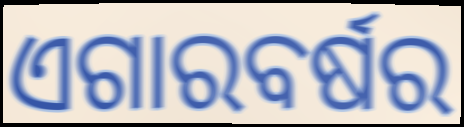
ଏଗାରବର୍ଷର